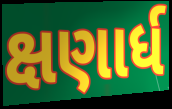
ક્ષણાર્ધ